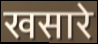
खसारे